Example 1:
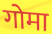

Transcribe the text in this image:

गोमा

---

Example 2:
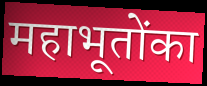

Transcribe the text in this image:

महाभूतोंका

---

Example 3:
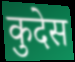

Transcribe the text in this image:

कुदेस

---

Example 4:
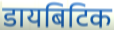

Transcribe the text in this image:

डायबिटिक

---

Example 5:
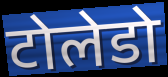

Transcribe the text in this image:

टोलेडो